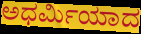
ಅಧರ್ಮಿಯಾದ